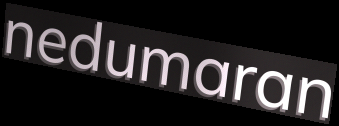
nedumaran